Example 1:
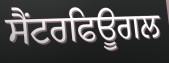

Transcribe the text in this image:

ਸੈਂਟਰਫਿਊਗਲ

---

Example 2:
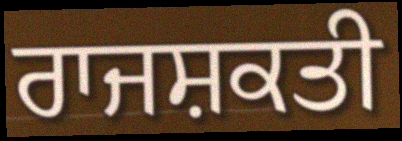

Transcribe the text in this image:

ਰਾਜਸ਼ਕਤੀ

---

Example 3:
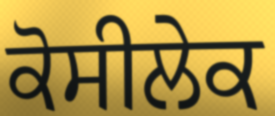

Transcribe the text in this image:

ਕੋਸੀਲੇਕ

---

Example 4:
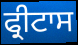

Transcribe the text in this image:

ਫ੍ਰੀਟਾਸ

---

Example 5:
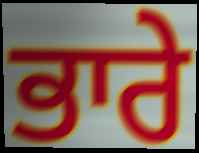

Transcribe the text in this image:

ਭਾਰੇ